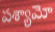
పశ్యామో